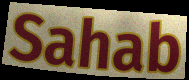
Sahab